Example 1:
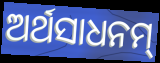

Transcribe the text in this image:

ଅର୍ଥସାଧନମ୍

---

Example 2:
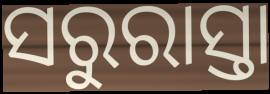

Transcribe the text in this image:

ସରୁରାସ୍ତା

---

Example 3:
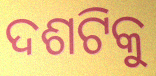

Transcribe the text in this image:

ଦଶଟିକୁ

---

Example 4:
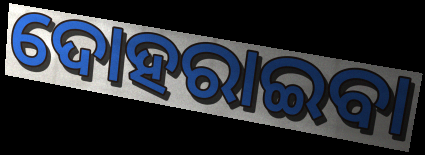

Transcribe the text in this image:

ଦୋହରାଇବା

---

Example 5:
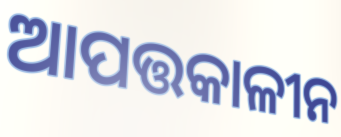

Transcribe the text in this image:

ଆପତ୍ତକାଳୀନ